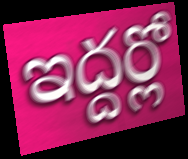
ఇద్దర్లో